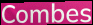
Combes